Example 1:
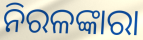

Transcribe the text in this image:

ନିରଳଙ୍କାରା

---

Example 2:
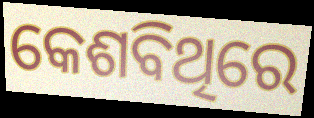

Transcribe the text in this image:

କେଶବିଥିରେ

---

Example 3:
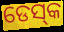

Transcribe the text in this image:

ଡେସ୍‌କ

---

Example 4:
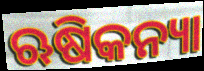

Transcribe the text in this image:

ଋଷିକନ୍ୟା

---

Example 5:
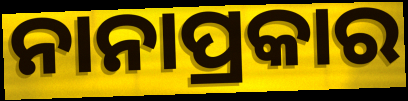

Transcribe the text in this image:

ନାନାପ୍ରକାର